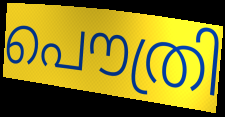
പൌത്രി